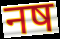
नष